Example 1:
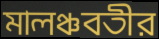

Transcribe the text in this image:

মালঞ্চবতীর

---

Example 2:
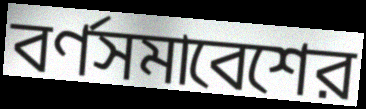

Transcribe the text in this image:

বর্ণসমাবেশের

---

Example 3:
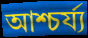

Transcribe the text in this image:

আশ্চর্য্য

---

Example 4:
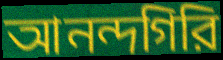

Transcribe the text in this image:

আনন্দগিরি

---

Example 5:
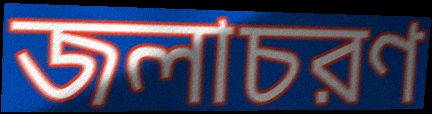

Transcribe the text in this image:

জলাচরণ